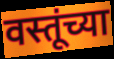
वस्तूंच्या